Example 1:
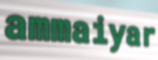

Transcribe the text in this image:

ammaiyar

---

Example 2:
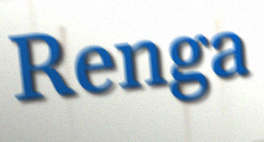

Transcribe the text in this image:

Renga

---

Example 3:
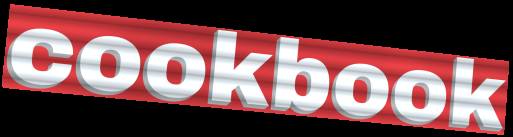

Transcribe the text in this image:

cookbook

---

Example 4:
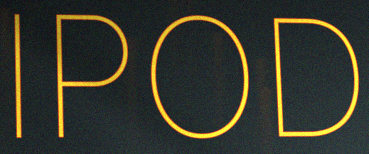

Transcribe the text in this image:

IPOD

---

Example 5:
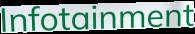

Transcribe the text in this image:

Infotainment